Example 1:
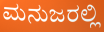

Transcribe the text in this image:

ಮನುಜರಲ್ಲಿ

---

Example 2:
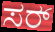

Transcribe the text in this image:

ಸರ‍್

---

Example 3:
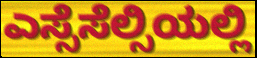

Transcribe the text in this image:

ಎಸ್ಸೆಸೆಲ್ಸಿಯಲ್ಲಿ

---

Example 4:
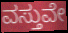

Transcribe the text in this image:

ವಸ್ತುವೇ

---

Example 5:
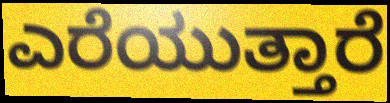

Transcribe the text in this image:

ಎರೆಯುತ್ತಾರೆ